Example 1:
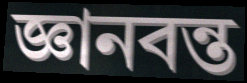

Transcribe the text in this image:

জ্ঞানবন্ত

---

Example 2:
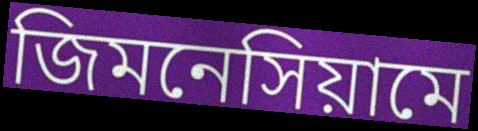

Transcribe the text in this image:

জিমনেসিয়ামে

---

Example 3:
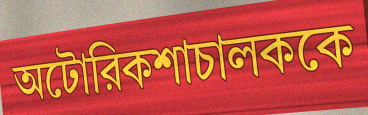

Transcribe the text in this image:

অটোরিকশাচালককে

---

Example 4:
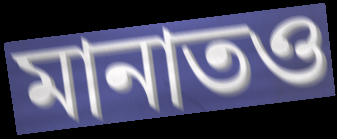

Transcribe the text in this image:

মানাতও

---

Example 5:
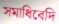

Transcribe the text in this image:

সমাধিবেদি